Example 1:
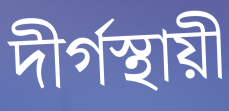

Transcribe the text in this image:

দীর্গস্থায়ী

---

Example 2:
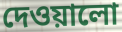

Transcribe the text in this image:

দেওয়ালো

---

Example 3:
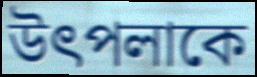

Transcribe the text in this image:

উৎপলাকে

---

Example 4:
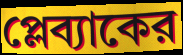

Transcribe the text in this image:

প্লেব্যাকের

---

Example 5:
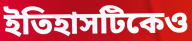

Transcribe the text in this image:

ইতিহাসটিকেও